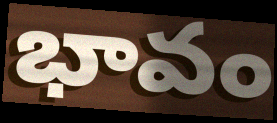
భావం